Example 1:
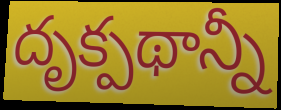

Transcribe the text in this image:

దృక్పథాన్నీ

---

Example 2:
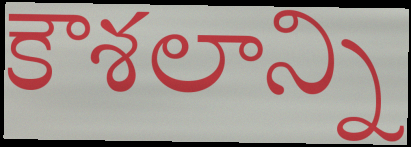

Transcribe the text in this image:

కౌశలాన్ని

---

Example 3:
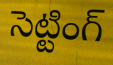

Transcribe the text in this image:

సెట్టింగ్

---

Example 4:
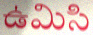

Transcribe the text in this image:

ఉమిసి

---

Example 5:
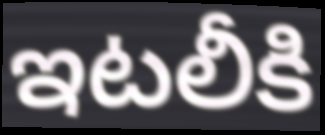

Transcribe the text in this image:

ఇటలీకి